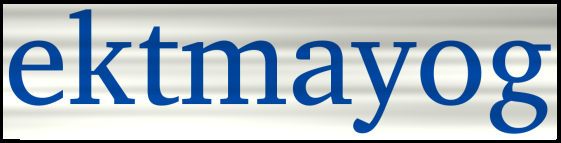
ektmayog